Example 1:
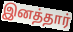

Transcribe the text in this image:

இனத்தார்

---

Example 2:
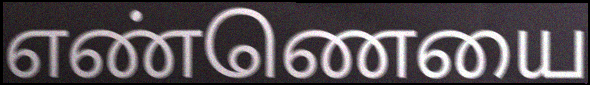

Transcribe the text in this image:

எண்ணெயை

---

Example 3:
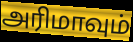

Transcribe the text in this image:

அரிமாவும்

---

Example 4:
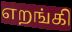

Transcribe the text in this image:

எறங்கி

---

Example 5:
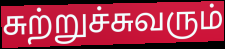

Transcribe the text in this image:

சுற்றுச்சுவரும்